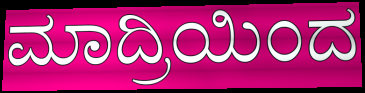
ಮಾದ್ರಿಯಿಂದ